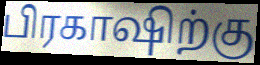
பிரகாஷிற்கு